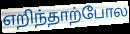
எறிந்தாற்போல